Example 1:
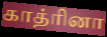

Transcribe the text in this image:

காத்ரினா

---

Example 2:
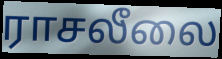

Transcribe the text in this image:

ராசலீலை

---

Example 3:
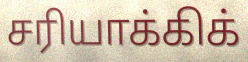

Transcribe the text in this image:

சரியாக்கிக்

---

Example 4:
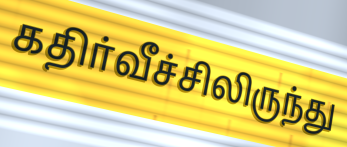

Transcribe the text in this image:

கதிர்வீச்சிலிருந்து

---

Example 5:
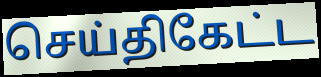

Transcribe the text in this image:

செய்திகேட்ட